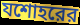
যশোহরের